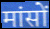
मांसों